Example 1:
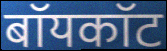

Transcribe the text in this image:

बॉयकॉट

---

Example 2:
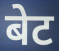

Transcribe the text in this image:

बेट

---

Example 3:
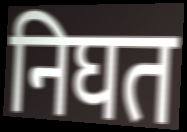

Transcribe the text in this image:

निघत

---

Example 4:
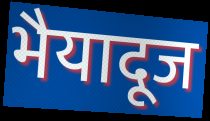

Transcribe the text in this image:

भैयादूज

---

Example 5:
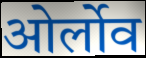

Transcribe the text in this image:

ओर्लोव